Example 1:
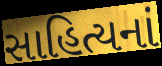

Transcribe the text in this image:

સાહિત્યનાં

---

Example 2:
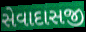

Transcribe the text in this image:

સેવાદાસજી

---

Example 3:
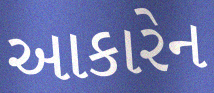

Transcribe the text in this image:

આકારેન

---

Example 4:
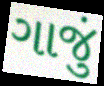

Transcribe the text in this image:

ગાજું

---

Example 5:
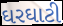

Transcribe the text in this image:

ઘરઘાટી